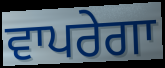
ਵਾਪਰੇਗਾ